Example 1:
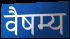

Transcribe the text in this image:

वैषम्य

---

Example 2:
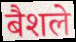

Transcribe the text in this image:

बैशले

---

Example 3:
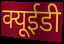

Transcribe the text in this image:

क्यूईडी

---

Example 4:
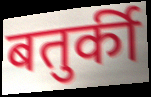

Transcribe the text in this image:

बतुर्की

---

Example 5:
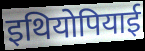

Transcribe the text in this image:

इथियोपियाई